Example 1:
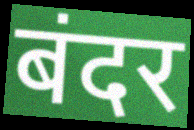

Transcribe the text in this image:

बंदर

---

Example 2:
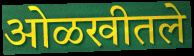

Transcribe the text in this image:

ओळखीतले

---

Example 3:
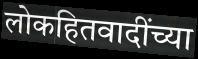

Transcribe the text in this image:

लोकहितवादींच्या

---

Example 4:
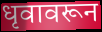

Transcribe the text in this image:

धृवावरून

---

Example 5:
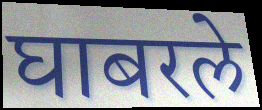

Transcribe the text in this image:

घाबरले